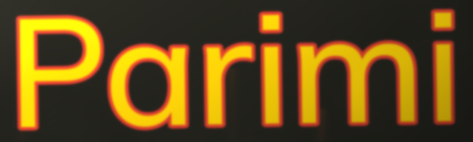
Parimi